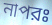
নাপরঃ